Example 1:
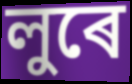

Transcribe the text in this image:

লুৰে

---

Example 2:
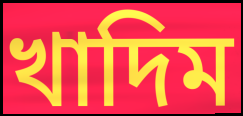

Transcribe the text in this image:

খাদিম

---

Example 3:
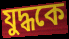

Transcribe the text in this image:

যুদ্ধকে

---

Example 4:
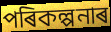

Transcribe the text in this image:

পৰিকল্পনাৰ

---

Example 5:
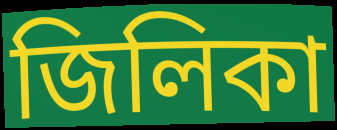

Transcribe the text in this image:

জিলিকা